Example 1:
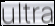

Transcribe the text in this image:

ultra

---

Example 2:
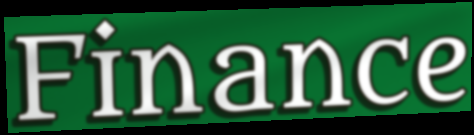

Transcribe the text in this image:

Finance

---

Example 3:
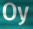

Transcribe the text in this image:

Oy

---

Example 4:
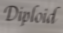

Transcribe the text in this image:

Diploid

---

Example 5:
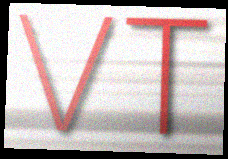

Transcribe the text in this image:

VT